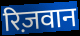
रिज़वान